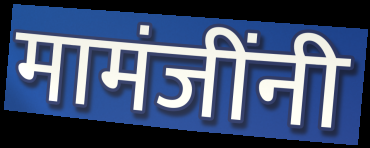
मामंजींनी